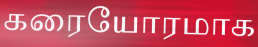
கரையோரமாக